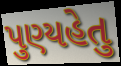
પુણ્યહેતુ